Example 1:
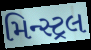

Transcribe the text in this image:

મિન્સ્ટ્રલ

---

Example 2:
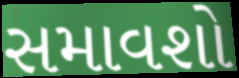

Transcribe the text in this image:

સમાવશો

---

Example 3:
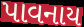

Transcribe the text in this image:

પાવનાય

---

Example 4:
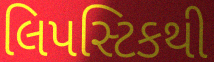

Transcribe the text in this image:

લિપસ્ટિકથી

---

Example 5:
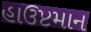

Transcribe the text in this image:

હાઉપ્ટમાન